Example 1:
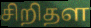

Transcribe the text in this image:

சிறிதள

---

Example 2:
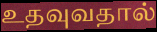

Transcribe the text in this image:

உதவுவதால்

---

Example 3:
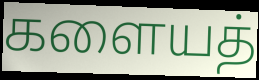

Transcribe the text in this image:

களையத்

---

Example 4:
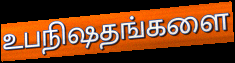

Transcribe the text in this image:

உபநிஷதங்களை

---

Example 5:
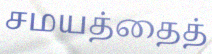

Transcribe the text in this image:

சமயத்தைத்